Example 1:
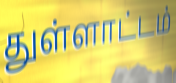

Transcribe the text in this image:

துள்ளாட்டம்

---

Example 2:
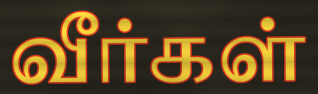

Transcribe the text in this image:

வீர்கள்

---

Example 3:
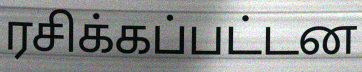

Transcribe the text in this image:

ரசிக்கப்பட்டன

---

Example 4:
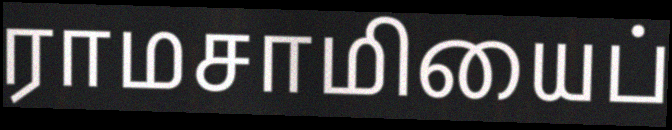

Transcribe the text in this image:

ராமசாமியைப்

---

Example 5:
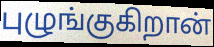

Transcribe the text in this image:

புழுங்குகிறான்